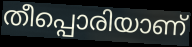
തീപ്പൊരിയാണ്